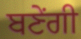
ਬਣੇਂਗੀ